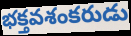
భక్తవశంకరుడు